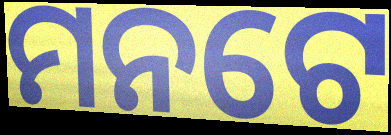
ମନଟେ